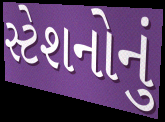
સ્ટેશનોનું